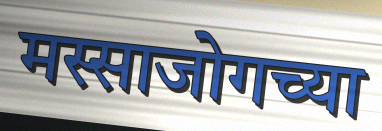
मस्साजोगच्या